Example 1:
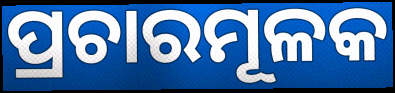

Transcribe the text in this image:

ପ୍ରଚାରମୂଳକ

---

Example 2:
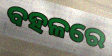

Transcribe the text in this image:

ବହଳରେ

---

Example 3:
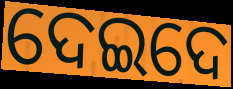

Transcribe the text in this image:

ଦେଇଦେ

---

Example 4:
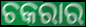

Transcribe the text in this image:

ଚକରାର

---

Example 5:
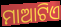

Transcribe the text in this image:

ମାଆଟିଏ